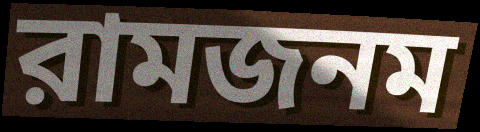
রামজনম